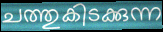
ചത്തുകിടക്കുന്ന